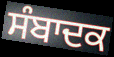
ਸੰਬਾਦਕ